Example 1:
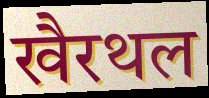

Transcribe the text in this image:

खैरथल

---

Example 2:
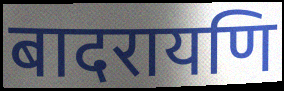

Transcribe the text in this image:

बादरायणि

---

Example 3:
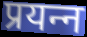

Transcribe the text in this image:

प्रयन्न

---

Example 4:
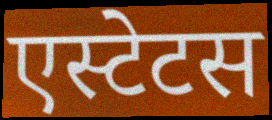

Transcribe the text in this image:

एस्टेटस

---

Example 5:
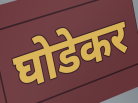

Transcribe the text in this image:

घोडेकर